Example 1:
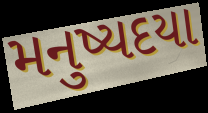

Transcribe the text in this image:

મનુષ્યદયા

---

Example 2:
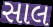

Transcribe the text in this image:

સાલ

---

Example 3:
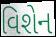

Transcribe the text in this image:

વિશેન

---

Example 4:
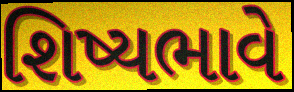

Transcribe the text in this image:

શિષ્યભાવે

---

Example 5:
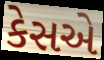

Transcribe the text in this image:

કેસએ